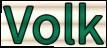
Volk